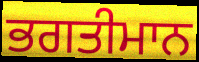
ਭਗਤੀਮਾਨ